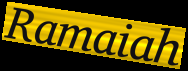
Ramaiah